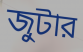
জুটার